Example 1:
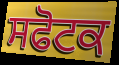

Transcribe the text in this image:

ਸਫੋਟਕ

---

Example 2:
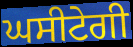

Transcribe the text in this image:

ਘਸੀਟੇਗੀ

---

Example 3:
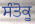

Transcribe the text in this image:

ਸੰਤੋਕੂ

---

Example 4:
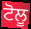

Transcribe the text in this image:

ਟੋਲੂ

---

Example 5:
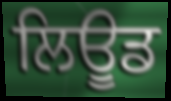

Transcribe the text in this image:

ਲਿਊਡ